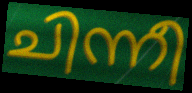
ചിന്നീ